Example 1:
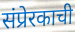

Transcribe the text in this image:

संप्रेरकाची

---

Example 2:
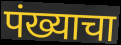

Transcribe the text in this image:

पंख्याचा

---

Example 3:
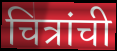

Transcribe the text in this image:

चित्रांची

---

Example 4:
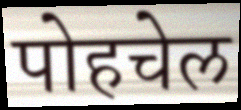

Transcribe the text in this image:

पोहचेल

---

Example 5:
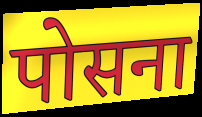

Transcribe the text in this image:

पोसना